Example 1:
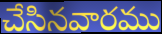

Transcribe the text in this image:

చేసినవారము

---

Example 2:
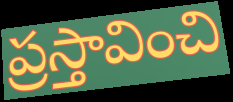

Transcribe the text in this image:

ప్రస్తావించి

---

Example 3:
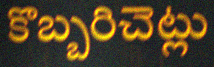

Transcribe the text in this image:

కొబ్బరిచెట్లు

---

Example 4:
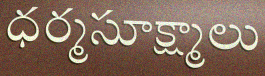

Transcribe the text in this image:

ధర్మసూక్ష్మాలు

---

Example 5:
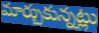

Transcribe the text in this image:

మార్చుకున్నట్లు